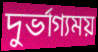
দুর্ভাগ্যময়